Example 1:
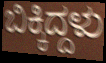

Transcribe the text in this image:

ಬಿಕ್ಕಿದ್ದಳು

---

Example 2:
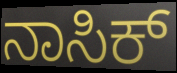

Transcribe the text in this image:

ನಾಸಿಕ್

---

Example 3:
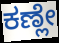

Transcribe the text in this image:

ಕಣ್ಲೇ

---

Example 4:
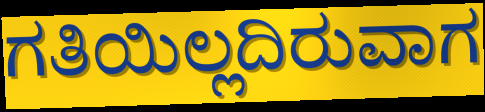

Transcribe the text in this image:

ಗತಿಯಿಲ್ಲದಿರುವಾಗ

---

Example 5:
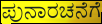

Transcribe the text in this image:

ಪುನಾರಚನೆಗೆ